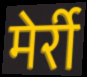
मेर्री